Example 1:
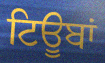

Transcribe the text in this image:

ਟਿਊਬਾਂ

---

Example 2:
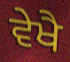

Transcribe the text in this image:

ਵੇਖੈ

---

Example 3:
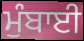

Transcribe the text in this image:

ਮੁੰਬਾਈ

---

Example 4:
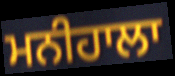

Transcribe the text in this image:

ਮਨੀਹਾਲਾ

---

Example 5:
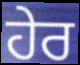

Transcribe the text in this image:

ਹੇਰ